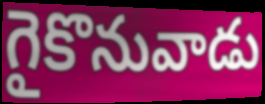
గైకొనువాడు